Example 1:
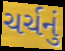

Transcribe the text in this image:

ચર્ચનું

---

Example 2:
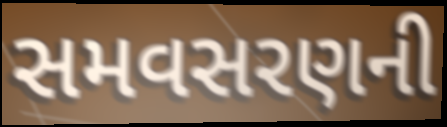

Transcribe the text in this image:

સમવસરણની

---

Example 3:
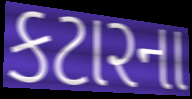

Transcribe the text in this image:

કટારના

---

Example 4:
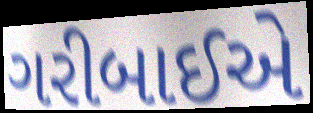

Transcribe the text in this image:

ગરીબાઈએ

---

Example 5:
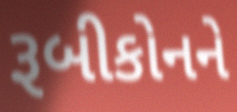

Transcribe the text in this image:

રૂબીકોનને